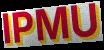
IPMU